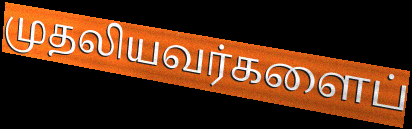
முதலியவர்களைப்